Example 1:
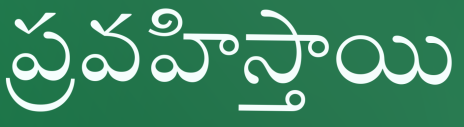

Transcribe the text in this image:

ప్రవహిస్తాయి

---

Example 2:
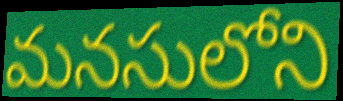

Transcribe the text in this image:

మనసులోని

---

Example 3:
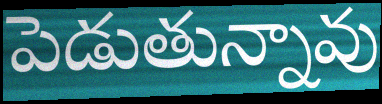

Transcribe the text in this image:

పెడుతున్నావు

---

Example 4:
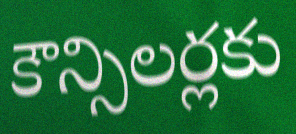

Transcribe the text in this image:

కౌన్సిలర్లకు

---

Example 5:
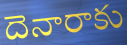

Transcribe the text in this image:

దెనారాకు